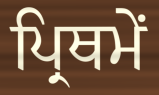
ਪ੍ਰਿਥਮੇਂ